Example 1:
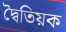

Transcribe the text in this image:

দ্বৈতিয়ক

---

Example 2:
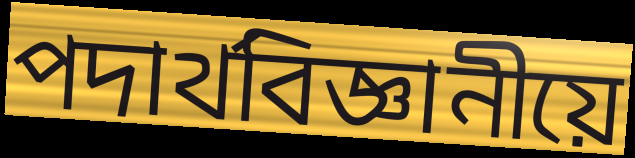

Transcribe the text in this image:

পদাৰ্থবিজ্ঞানীয়ে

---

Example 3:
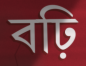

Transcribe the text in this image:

বঢ়ি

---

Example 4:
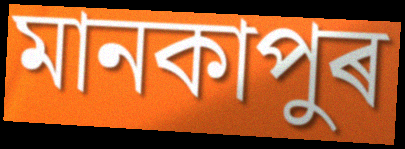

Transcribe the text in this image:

মানকাপুৰ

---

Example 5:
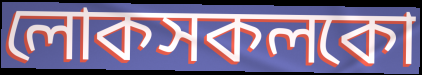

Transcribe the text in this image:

লোকসকলকো